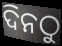
ଦିନଠୁ